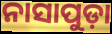
ନାସାପୁଡ଼ା